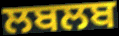
ਲਬਲਬ